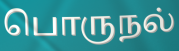
பொருநல்